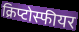
क्रिप्टोस्फीयर